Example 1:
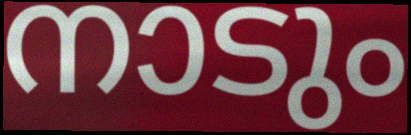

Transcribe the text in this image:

നാടും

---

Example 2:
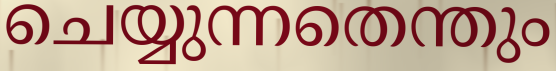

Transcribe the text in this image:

ചെയ്യുന്നതെന്തും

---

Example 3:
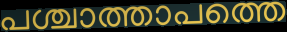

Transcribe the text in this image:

പശ്ചാത്താപത്തെ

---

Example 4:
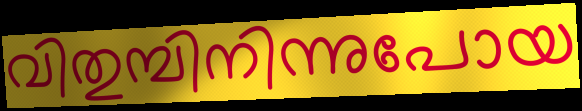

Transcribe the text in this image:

വിതുമ്പിനിന്നുപോയ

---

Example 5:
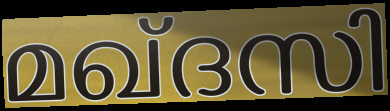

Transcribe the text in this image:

മഖ്ദസി